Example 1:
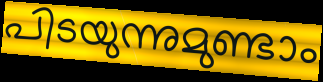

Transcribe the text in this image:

പിടയുന്നുമുണ്ടാം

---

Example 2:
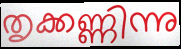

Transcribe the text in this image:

തൃക്കണ്ണിന്നു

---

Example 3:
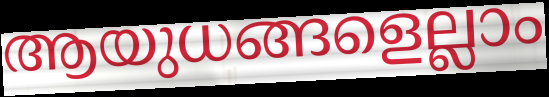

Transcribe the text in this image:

ആയുധങ്ങളെല്ലാം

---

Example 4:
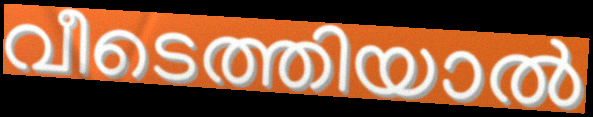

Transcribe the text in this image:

വീടെത്തിയാൽ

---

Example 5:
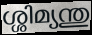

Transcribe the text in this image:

ശ്ശിമ്യന്തു